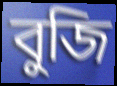
বুজি